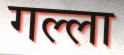
गल्ला